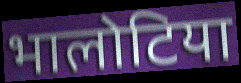
भालोटिया